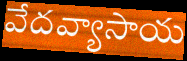
వేదవ్యాసాయ